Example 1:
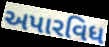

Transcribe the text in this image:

અપારવિધ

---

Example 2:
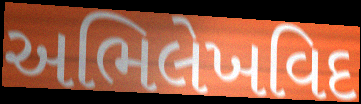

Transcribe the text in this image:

અભિલેખવિદ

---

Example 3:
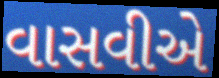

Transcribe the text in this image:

વાસવીએ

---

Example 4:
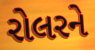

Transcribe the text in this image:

રોલરને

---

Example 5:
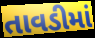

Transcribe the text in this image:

તાવડીમાં